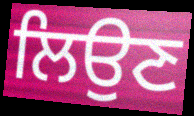
ਲਿਉਣ